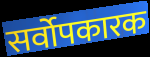
सर्वोपकारक